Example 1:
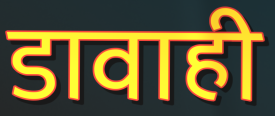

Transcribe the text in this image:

डावाही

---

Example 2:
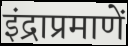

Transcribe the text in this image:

इंद्राप्रमाणें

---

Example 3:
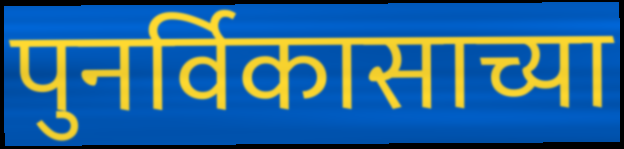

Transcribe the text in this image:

पुनर्विकासाच्या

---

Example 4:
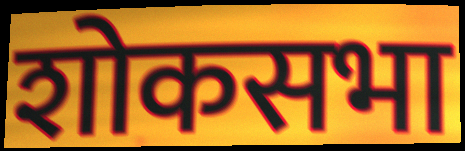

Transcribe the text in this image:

शोकसभा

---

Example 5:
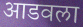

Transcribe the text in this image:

आडवला